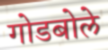
गोडबोले